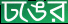
ঢঙের